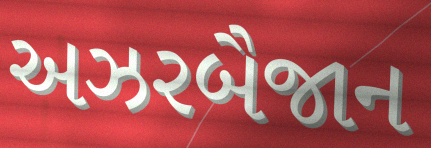
અઝરબૈજાન